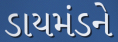
ડાયમંડને